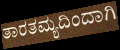
ತಾರತಮ್ಯದಿಂದಾಗಿ